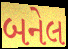
બનેલ